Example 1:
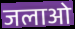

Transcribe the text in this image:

जलाओ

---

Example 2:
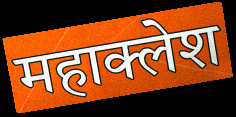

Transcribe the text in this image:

महाक्लेश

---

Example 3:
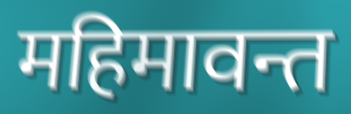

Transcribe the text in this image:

महिमावन्त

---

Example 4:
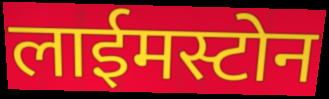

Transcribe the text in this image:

लाईमस्टोन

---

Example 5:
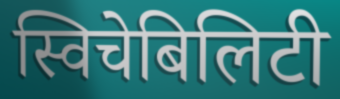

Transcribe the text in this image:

स्विचेबिलिटी